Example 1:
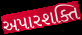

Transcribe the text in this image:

અપારશક્તિ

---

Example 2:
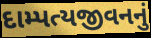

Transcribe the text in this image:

દામ્પત્યજીવનનું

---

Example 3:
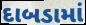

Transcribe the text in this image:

દાબડામાં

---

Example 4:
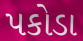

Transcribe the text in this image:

પકોડા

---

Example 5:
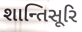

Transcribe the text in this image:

શાન્તિસૂરિ